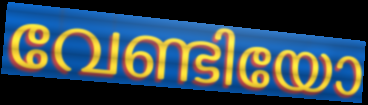
വേണ്ടിയോ